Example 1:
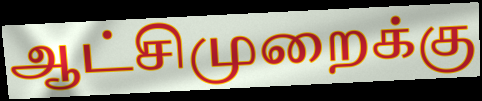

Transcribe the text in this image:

ஆட்சிமுறைக்கு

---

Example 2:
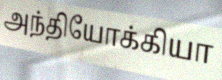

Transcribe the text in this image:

அந்தியோக்கியா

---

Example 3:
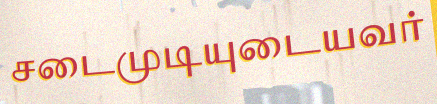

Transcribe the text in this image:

சடைமுடியுடையவர்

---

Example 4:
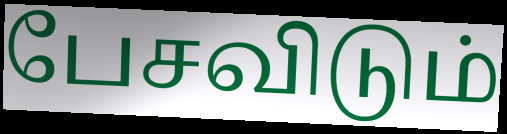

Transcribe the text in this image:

பேசவிடும்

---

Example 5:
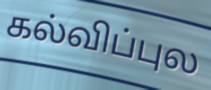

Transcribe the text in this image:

கல்விப்புல